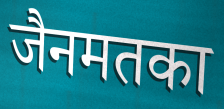
जैनमतका